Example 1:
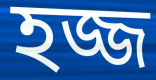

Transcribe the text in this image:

হজ্জ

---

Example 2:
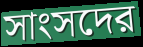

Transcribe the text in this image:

সাংসদের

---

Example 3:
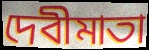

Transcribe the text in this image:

দেবীমাতা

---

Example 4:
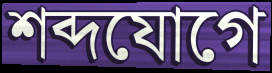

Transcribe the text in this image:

শব্দযোগে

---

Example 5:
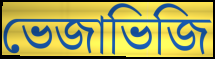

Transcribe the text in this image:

ভেজাভিজি